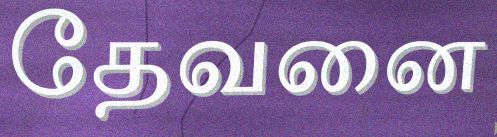
தேவனை